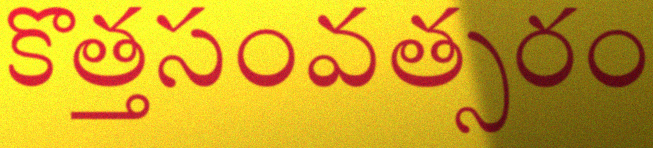
కొత్తసంవత్సరం